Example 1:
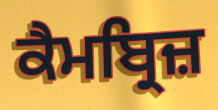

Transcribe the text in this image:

ਕੈਮਬ੍ਰਿਜ਼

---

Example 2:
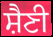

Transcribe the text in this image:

ਸ਼ੈਣੀ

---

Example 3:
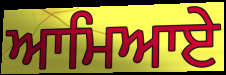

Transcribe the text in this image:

ਆਮਿਆਏ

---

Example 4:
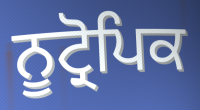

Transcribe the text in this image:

ਨੂਟ੍ਰੋਪਿਕ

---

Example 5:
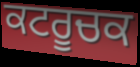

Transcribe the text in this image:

ਕਟਰੂਚਕ